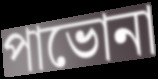
পাভোনা